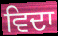
ਵਿਦਾ